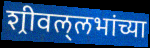
श्रीवल्लभांच्या